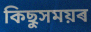
কিছুসময়ৰ